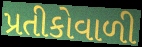
પ્રતીકોવાળી